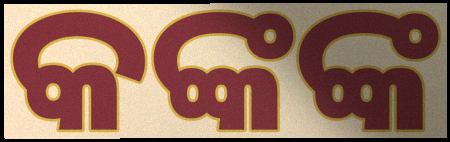
କଙ୍କଙ୍କ